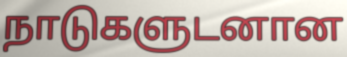
நாடுகளுடனான